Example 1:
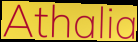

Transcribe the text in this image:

Athalia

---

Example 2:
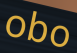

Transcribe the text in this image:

obo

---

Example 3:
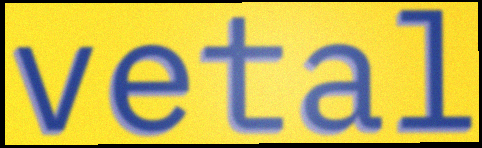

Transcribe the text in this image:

vetal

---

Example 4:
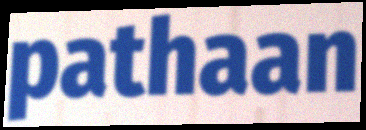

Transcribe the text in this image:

pathaan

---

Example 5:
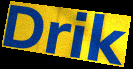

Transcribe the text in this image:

Drik